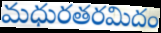
మధురతరమిదం